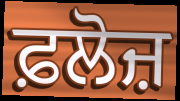
ਫ਼ਲੋਜ਼